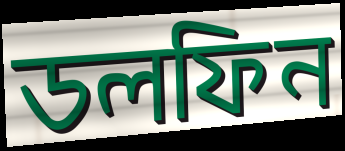
ডলফিন